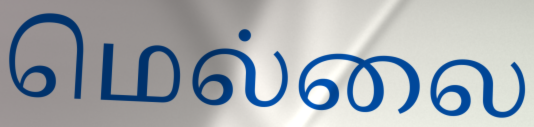
மெல்லை